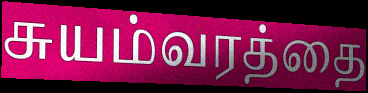
சுயம்வரத்தை